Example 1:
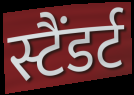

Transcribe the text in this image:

स्टैंडर्ट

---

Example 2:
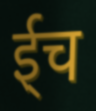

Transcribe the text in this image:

ई्च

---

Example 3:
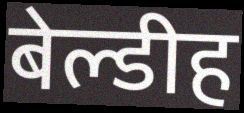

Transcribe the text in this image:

बेल्डीह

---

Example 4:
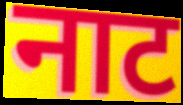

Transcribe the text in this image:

नाट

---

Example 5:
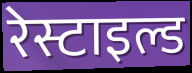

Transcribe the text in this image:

रेस्टाइल्ड